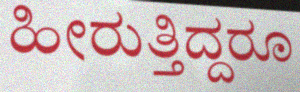
ಹೀರುತ್ತಿದ್ದರೂ